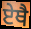
ਏਥੈ